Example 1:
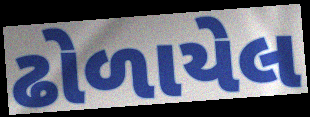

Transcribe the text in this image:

ઢોળાયેલ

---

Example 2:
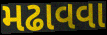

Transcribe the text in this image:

મઢાવવા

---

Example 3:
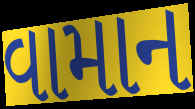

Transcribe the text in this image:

વામાન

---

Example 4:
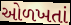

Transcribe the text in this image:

ઓળખતાં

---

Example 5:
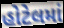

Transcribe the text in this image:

હોટેલમાં